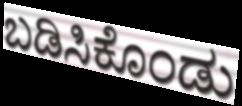
ಬಡಿಸಿಕೊಂಡು